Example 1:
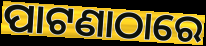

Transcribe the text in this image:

ପାଟଣାଠାରେ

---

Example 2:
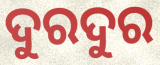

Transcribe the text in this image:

ଦୁରଦୁର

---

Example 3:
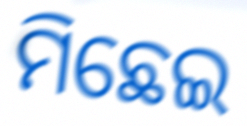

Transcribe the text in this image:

ମିଛେଇ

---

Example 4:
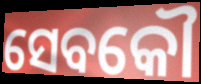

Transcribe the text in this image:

ସେବକୌ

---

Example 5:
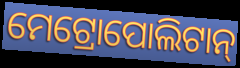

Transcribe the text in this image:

ମେଟ୍ରୋପୋଲିଟାନ୍